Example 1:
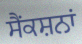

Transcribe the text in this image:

ਸੈਂਕਸ਼ਨਾਂ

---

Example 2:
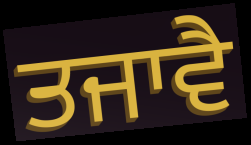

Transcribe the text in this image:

ਤਜਾਵੈ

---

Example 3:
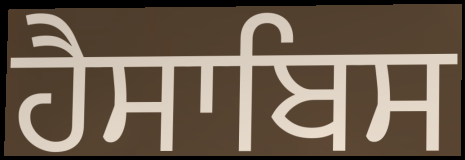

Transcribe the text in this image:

ਹੈਸਾਬਿਸ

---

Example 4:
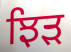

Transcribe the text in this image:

ਝਿੜ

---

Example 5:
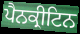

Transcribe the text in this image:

ਪੈਨਕ੍ਰੀਟਿਨ